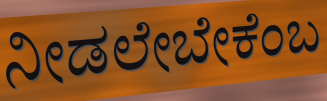
ನೀಡಲೇಬೇಕೆಂಬ